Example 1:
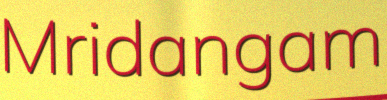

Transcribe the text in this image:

Mridangam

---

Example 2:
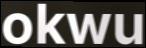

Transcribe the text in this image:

okwu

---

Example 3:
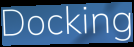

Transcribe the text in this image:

Docking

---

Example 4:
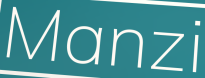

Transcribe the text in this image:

Manzi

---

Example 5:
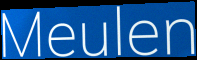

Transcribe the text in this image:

Meulen